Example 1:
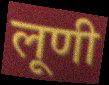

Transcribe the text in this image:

लूणी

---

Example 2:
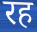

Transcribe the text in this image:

रह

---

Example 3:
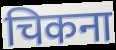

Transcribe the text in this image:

चिकना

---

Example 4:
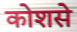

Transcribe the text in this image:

कोशसे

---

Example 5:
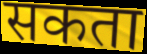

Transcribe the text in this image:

सकता